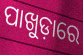
ପାଖୁଡ଼ାରେ